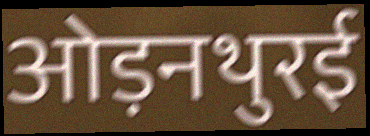
ओड़नथुरई